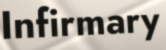
Infirmary